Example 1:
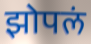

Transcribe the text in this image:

झोपलं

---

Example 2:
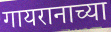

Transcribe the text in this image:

गायरानाच्या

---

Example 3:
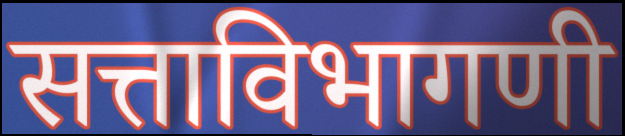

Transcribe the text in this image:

सत्ताविभागणी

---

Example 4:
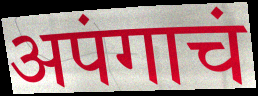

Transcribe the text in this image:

अपंगाचं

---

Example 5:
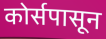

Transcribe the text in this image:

कोर्सपासून